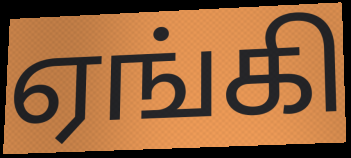
ஏங்கி